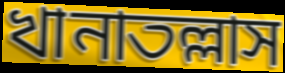
খানাতল্লাস